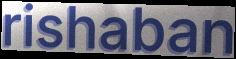
rishaban